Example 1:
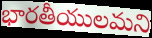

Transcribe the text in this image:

భారతీయులమని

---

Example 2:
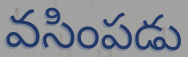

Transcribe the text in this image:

వసింపడు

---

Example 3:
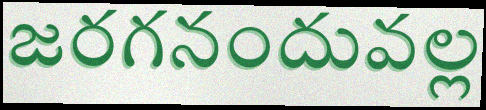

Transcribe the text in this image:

జరగనందువల్ల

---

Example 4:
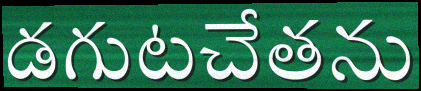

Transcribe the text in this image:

డగుటచేతను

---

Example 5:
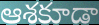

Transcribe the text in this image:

ఆశకూడా